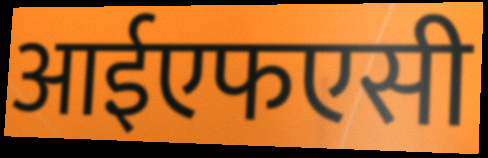
आईएफएसी